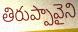
తిరుప్పావైని